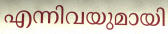
എന്നിവയുമായി